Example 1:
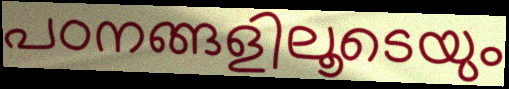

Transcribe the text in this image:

പഠനങ്ങളിലൂടെയും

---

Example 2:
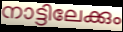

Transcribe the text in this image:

നാട്ടിലേക്കും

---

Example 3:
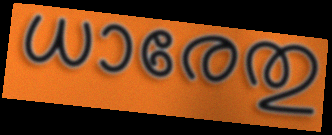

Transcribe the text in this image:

ധാരേതു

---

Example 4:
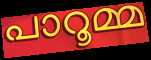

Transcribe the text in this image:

പാറൂമ്മ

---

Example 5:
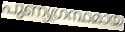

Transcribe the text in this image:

പുണ്യഗ്രന്ഥമായ